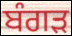
ਬੰਗੜ